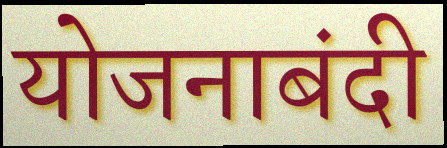
योजनाबंदी